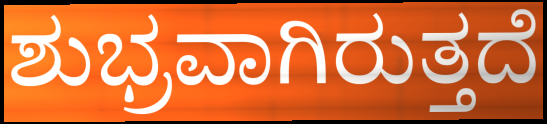
ಶುಭ್ರವಾಗಿರುತ್ತದೆ